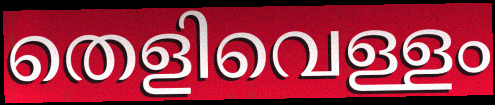
തെളിവെള്ളം